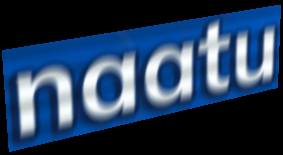
naatu